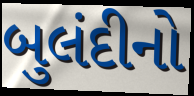
બુલંદીનો